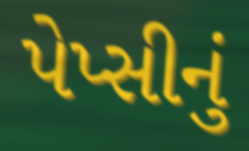
પેપ્સીનું